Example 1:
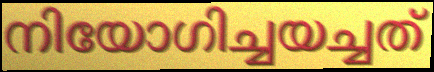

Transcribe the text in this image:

നിയോഗിച്ചയച്ചത്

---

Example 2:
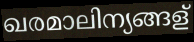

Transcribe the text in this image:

ഖരമാലിന്യങ്ങള്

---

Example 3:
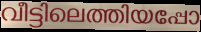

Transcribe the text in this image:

വീട്ടിലെത്തിയപ്പോ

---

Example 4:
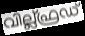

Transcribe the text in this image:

വില്ല്ഫ്രഡ്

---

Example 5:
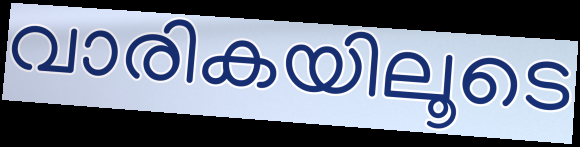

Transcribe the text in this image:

വാരികയിലൂടെ